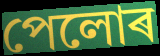
পেলোৰ